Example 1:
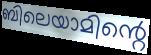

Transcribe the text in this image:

ബിലെയാമിന്റെ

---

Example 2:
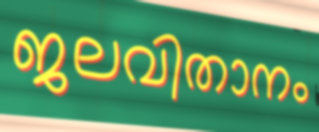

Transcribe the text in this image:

ജലവിതാനം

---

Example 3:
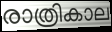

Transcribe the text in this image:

രാത്രികാല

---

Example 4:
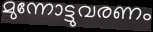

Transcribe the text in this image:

മുന്നോട്ടുവരണം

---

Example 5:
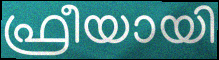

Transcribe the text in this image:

ഫ്രീയായി